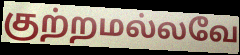
குற்றமல்லவே